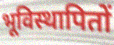
भूविस्थापितों